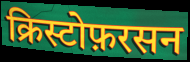
क्रिस्टोफ़रसन